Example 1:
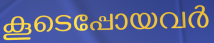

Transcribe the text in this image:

കൂടെപ്പോയവർ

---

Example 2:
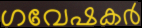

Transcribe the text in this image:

ഗവേഷകർ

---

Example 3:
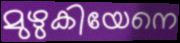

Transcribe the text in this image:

മുഴുകിയേനെ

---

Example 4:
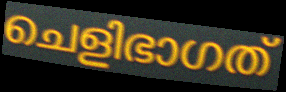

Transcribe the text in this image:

ചെളിഭാഗത്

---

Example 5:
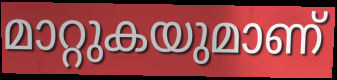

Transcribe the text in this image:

മാറ്റുകയുമാണ്